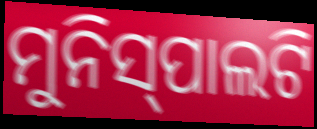
ମୁନିସ୍‍ପାଲଟି